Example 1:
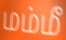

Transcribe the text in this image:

மம்மீ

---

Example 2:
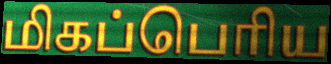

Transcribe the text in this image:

மிகப்பெரிய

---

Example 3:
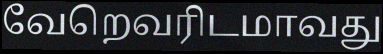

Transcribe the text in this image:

வேறெவரிடமாவது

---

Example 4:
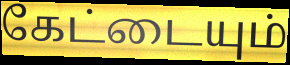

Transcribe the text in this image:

கேட்டையும்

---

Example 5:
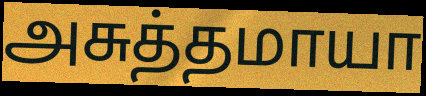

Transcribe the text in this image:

அசுத்தமாயா